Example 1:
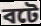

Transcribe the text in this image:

বটে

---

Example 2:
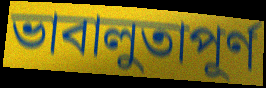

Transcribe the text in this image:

ভাবালুতাপূর্ণ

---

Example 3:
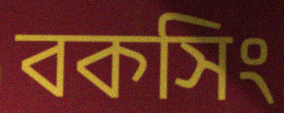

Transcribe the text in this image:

বকসিং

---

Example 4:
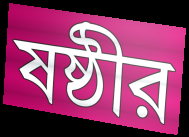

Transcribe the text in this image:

ষষ্ঠীর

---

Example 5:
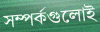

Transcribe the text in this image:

সম্পর্কগুলোই